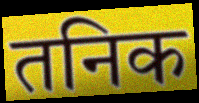
तनिक